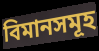
বিমানসমূহ